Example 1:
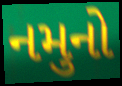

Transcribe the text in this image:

નમુનો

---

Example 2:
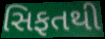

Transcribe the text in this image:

સિફતથી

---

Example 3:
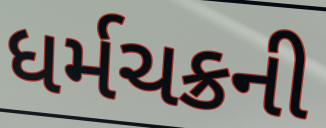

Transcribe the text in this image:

ધર્મચક્રની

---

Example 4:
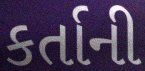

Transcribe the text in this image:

કર્તાની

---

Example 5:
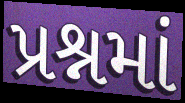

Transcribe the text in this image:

પ્રશ્નમાં